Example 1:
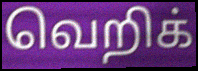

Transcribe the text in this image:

வெறிக்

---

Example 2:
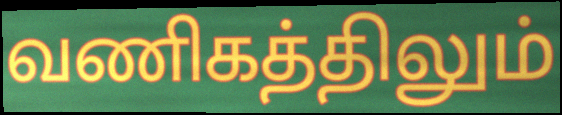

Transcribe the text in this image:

வணிகத்திலும்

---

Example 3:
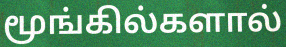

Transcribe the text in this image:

மூங்கில்களால்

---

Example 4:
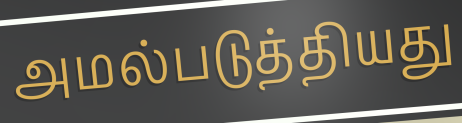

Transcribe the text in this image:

அமல்படுத்தியது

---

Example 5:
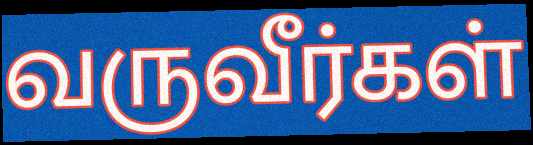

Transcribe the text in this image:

வருவீர்கள்